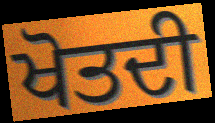
ਖੋਤਦੀ